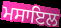
ਮਸਾਇਲ